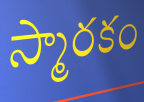
స్మారకం